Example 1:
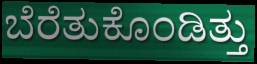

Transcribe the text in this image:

ಬೆರೆತುಕೊಂಡಿತ್ತು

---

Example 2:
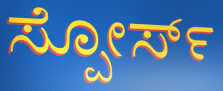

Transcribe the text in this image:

ಸ್ಪೋರ್ಸ್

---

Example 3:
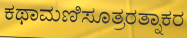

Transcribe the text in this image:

ಕಥಾಮಣಿಸೂತ್ರರತ್ನಾಕರ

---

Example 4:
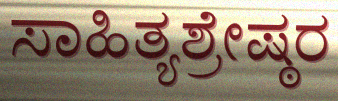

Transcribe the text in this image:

ಸಾಹಿತ್ಯಶ್ರೇಷ್ಠರ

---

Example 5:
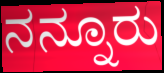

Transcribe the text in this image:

ನನ್ನೂರು